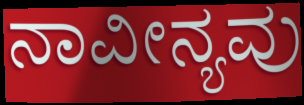
ನಾವೀನ್ಯವು